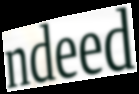
ndeed